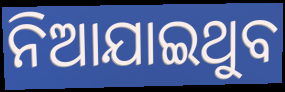
ନିଆଯାଇଥୁବ